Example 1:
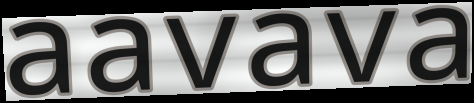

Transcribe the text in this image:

aavava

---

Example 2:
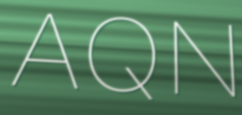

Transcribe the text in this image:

AQN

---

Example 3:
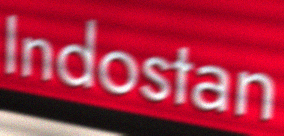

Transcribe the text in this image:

Indostan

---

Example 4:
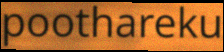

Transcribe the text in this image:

poothareku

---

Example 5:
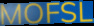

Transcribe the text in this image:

MOFSL